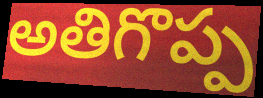
అతిగొప్ప